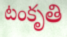
టంకృతి